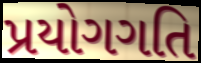
પ્રયોગગતિ